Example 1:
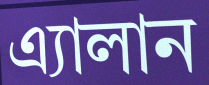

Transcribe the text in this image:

এ্যালান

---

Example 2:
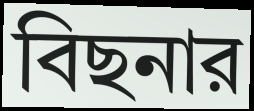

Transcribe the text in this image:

বিছনার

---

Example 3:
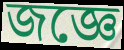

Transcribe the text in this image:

জজ্ঞে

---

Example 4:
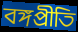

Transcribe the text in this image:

বঙ্গপ্রীতি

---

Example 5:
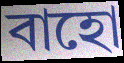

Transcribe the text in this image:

বাহো